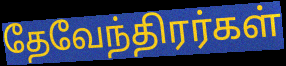
தேவேந்திரர்கள்